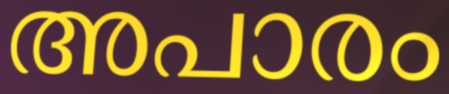
അപാരം